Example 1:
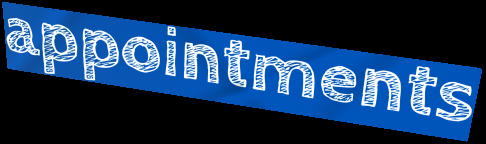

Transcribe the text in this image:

appointments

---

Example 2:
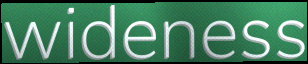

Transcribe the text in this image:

wideness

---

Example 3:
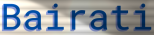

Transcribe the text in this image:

Bairati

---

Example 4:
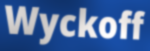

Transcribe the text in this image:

Wyckoff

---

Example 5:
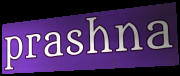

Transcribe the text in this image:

prashna